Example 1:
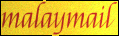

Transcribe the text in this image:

malaymail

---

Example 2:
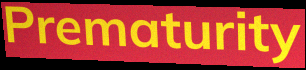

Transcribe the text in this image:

Prematurity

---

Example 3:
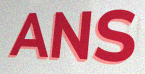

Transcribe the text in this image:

ANS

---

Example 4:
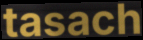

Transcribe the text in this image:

tasach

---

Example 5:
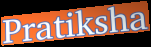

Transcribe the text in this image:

Pratiksha